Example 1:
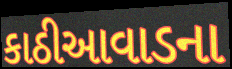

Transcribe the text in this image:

કાઠીઆવાડના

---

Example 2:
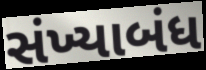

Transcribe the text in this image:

સંખ્યાબંધ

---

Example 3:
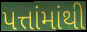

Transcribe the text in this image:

પત્તાંમાંથી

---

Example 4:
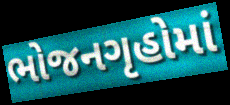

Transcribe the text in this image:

ભોજનગૃહોમાં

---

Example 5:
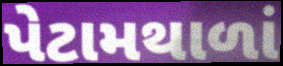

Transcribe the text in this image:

પેટામથાળાં